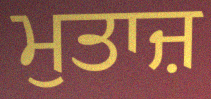
ਮੁਤਾਜ਼